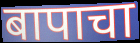
बापाचा